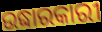
ଉଦ୍ଧାରକାରୀ